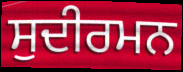
ਸੁਦੀਰਮਨ